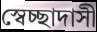
স্বেচ্ছাদাসী